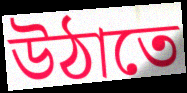
উঠাতে